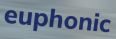
euphonic